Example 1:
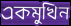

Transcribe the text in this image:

একমুখিন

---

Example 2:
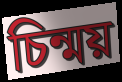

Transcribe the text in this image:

চিন্ময়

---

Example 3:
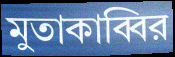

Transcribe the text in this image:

মুতাকাব্বির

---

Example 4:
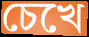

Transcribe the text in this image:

চেখে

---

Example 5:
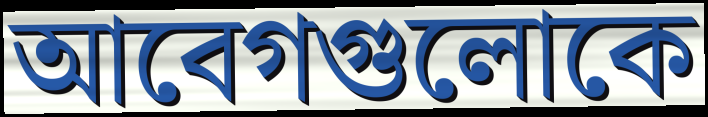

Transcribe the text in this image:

আবেগগুলোকে